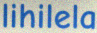
lihilela